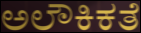
ಅಲೌಕಿಕತೆ